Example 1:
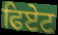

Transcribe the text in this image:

ਫਿਏਟ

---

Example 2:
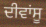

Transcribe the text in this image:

ਦੀਵਾਂਸੂ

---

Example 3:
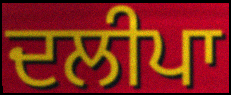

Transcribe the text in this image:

ਦਲੀਪਾ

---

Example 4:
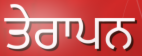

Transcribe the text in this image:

ਤੇਰਾਪਨ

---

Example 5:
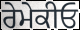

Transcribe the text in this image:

ਰੇਮੇਕੀਓ